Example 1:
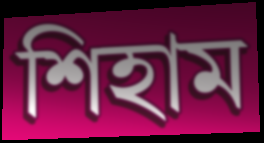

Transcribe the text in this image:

শিহাম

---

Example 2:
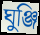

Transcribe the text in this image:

ঘুঞ্জি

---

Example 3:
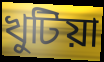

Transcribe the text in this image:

খুটিয়া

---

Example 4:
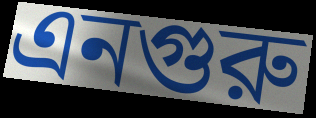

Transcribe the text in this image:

এনগুরু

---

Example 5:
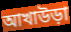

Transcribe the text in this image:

আখাউড়া